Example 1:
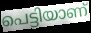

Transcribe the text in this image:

പെട്ടിയാണ്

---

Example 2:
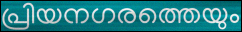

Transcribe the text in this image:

പ്രിയനഗരത്തെയും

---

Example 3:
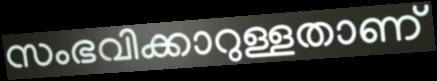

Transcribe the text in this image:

സംഭവിക്കാറുള്ളതാണ്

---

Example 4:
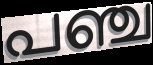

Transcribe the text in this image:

പഞ്ച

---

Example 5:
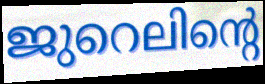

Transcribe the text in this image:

ജുറെലിന്റെ